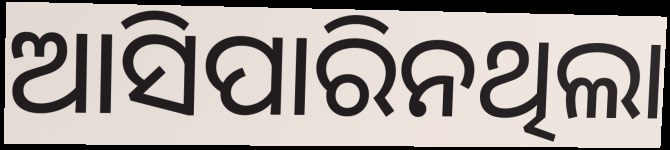
ଆସିପାରିନଥିଲା